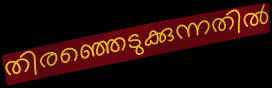
തിരഞ്ഞെടുക്കുന്നതിൽ